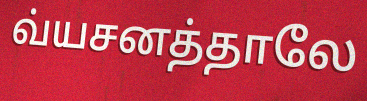
வ்யசனத்தாலே